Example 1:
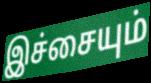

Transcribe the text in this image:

இச்சையும்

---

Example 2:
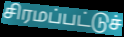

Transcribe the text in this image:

சிரமப்பட்டுச்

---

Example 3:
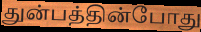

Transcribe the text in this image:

துன்பத்தின்போது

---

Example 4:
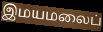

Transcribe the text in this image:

இமயமலைப்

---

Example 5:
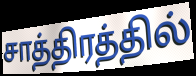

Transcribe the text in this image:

சாத்திரத்தில்